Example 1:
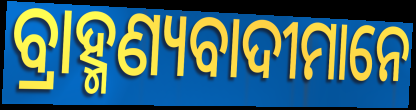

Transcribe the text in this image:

ବ୍ରାହ୍ମଣ୍ୟବାଦୀମାନେ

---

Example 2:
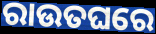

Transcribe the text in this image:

ରାଉତଘରେ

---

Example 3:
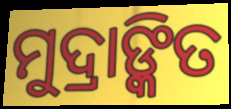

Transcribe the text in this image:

ମୁଦ୍ରାଙ୍କିତ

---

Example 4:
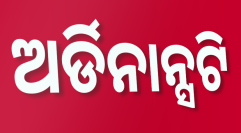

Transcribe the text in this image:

ଅର୍ଡିନାନ୍ସଟି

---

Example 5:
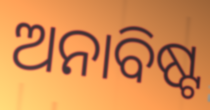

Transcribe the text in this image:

ଅନାବିଷ୍ଟ